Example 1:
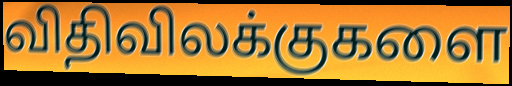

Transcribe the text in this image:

விதிவிலக்குகளை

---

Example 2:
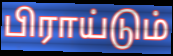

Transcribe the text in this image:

பிராய்டும்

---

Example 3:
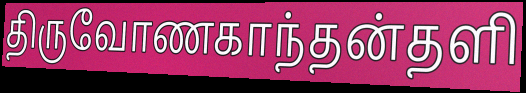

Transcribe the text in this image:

திருவோணகாந்தன்தளி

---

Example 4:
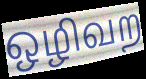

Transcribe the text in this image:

ஒழிவற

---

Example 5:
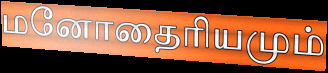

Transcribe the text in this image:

மனோதைரியமும்